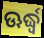
ଊର୍ଦ୍ଧ୍ୱ